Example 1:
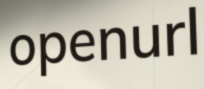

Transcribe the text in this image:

openurl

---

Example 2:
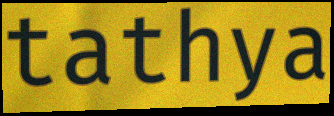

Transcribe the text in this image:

tathya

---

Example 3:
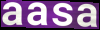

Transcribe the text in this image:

aasa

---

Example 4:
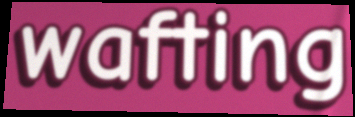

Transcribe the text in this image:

wafting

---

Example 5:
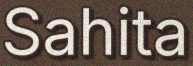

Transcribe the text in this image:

Sahita